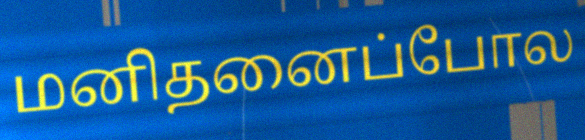
மனிதனைப்போல